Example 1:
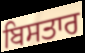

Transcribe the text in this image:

ਬਿਸਤਾਰ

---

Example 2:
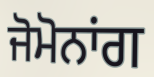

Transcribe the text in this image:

ਜੋਮੋਨਾਂਗ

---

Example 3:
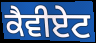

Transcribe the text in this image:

ਕੈਵੀਏਟ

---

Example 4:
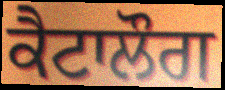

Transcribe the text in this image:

ਕੈਟਾਲੌਗ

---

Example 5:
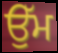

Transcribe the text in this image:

ਉੱਮ